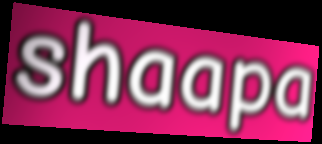
shaapa